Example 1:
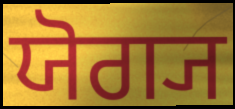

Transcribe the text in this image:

ਯੋਗ੍ਯ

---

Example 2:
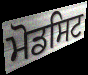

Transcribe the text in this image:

ਮੋਡਸਿਟ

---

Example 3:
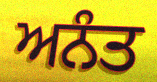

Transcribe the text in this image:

ਅਨੰਤ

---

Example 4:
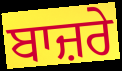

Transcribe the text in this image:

ਬਾਜ਼ਰੇ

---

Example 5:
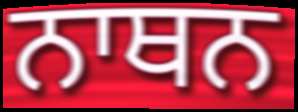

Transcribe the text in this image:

ਨਾਥਨ